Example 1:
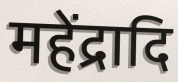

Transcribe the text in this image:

महेंद्रादि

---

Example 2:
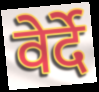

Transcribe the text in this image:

वेर्दे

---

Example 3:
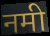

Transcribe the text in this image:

नमी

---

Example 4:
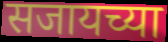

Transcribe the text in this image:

सजायच्या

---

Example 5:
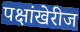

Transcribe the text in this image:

पक्षांखेरीज